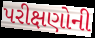
પરીક્ષણોની